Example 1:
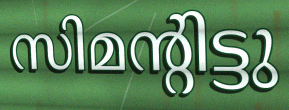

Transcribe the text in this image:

സിമന്റിട്ടു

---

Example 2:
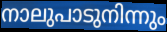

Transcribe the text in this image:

നാലുപാടുനിന്നും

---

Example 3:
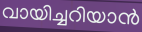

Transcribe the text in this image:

വായിച്ചറിയാൻ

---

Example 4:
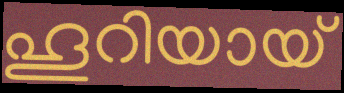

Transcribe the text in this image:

ഹൂറിയായ്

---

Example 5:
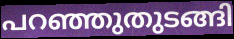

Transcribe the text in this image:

പറഞ്ഞുതുടങ്ങി